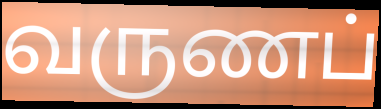
வருணப்